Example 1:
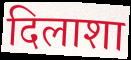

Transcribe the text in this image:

दिलाशा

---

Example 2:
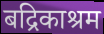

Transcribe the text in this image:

बद्रिकाश्रम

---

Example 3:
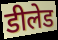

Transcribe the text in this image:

डीलेड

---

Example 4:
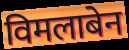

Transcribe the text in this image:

विमलाबेन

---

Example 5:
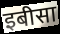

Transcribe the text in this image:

इबीसा